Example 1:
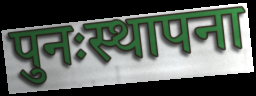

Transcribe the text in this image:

पुनःस्थापना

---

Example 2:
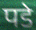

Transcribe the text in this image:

पडे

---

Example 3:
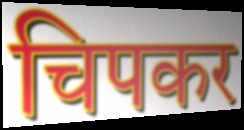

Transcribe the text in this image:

चिपकर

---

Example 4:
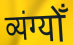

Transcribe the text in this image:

व्यंग्योँ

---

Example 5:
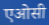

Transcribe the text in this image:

एओसी